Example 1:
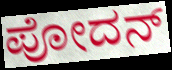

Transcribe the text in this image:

ಪೋದನ್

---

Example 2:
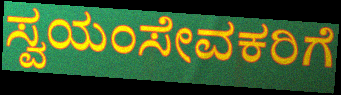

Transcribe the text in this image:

ಸ್ವಯಂಸೇವಕರಿಗೆ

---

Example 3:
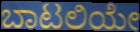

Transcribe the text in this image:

ಬಾಟಲಿಯೇ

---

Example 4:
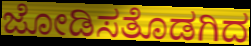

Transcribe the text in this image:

ಜೋಡಿಸತೊಡಗಿದ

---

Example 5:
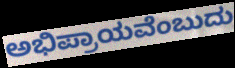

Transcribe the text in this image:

ಅಭಿಪ್ರಾಯವೆಂಬುದು